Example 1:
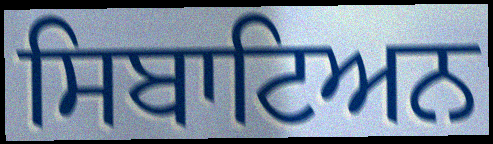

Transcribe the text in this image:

ਸਿਬਾਟਿਅਨ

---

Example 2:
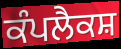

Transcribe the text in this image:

ਕੰਪਲੈਕਸ਼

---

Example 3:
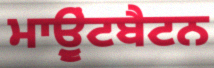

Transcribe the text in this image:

ਮਾਉੂਂਟਬੈਟਨ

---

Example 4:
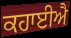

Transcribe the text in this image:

ਕਹਾਈਐ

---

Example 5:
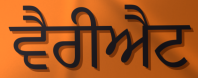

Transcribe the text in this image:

ਵੈਰੀਐਟ